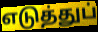
எடுத்துப்